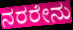
ನರರೇನು